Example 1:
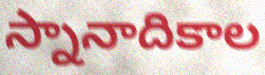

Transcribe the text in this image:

స్నానాదికాల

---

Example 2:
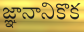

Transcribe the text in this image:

జ్ఞానానికొక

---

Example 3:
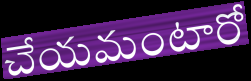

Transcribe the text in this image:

చేయమంటారో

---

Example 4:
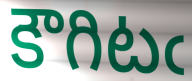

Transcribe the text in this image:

కౌగిటఁ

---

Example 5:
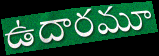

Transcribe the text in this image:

ఉదారమూ